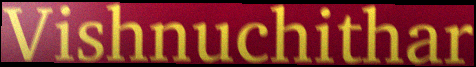
Vishnuchithar